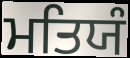
ਮਤਿਯੰ